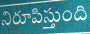
నిరూపిస్తుంది